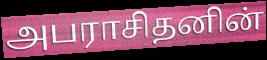
அபராசிதனின்